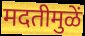
मदतीमुळें